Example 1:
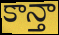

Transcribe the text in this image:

కాన్తా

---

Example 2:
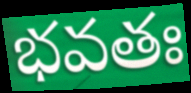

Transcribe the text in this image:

భవతః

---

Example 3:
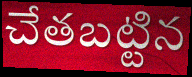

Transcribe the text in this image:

చేతబట్టిన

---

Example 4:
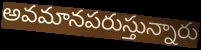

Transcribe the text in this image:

అవమానపరుస్తున్నారు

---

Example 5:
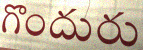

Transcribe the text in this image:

గొందురు